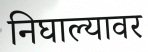
निघाल्यावर